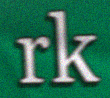
rk